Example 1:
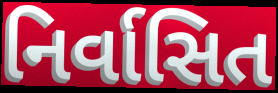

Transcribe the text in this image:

નિર્વાસિત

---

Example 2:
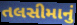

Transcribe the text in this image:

તલસીમાનું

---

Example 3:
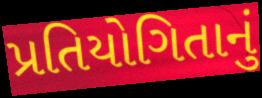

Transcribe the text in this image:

પ્રતિયોગિતાનું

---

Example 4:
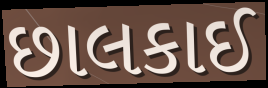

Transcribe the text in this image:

છાલકાઈ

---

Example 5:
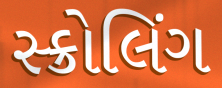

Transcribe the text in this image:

સ્ક્રોલિંગ